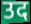
उद